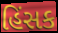
હિંસક